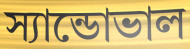
স্যান্ডোভাল